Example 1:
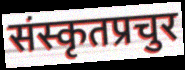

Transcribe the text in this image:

संस्कृतप्रचुर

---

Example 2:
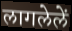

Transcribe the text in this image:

लागलेलें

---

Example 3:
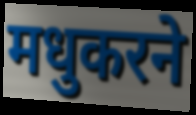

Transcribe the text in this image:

मधुकरने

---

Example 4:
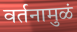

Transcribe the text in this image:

वर्तनामुळं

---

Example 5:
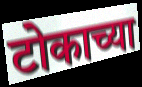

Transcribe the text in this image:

टोकाच्या